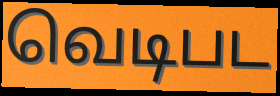
வெடிபட